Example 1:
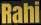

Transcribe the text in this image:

Rahi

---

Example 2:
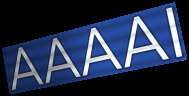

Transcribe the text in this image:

AAAAI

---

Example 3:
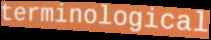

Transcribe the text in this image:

terminological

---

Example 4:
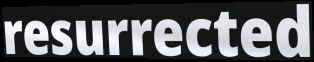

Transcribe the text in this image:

resurrected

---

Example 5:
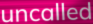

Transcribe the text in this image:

uncalled